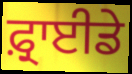
ਫ਼੍ਰਾਈਡੇ